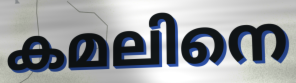
കമലിനെ